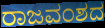
ರಾಜವಂಶದ